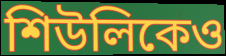
শিউলিকেও